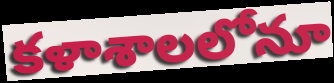
కళాశాలలోనూ